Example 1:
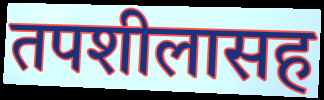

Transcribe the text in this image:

तपशीलासह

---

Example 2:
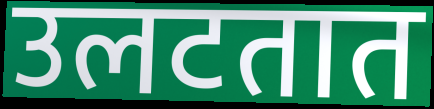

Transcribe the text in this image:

उलटतात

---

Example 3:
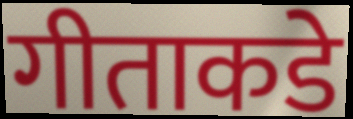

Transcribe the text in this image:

गीताकडे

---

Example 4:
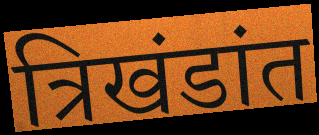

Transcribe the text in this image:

त्रिखंडांत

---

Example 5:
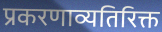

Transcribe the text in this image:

प्रकरणाव्यतिरिक्त